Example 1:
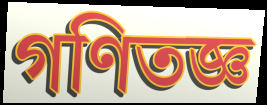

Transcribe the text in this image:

গণিতজ্ঞ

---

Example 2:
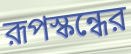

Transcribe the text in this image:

রূপস্কন্ধের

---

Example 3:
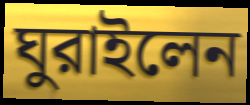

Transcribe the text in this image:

ঘুরাইলেন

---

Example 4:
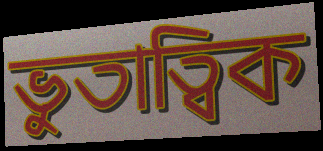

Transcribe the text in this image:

ভুতাত্বিক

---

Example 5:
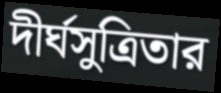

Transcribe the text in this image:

দীর্ঘসুত্রিতার